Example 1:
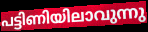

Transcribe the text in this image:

പട്ടിണിയിലാവുന്നു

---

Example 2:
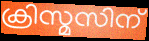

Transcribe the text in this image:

ക്രിസ്മസിന്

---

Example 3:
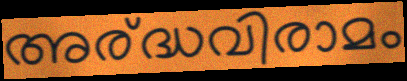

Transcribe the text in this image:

അര്ദ്ധവിരാമം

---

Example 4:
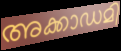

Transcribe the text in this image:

അക്കാഡമി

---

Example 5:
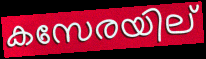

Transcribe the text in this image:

കസേരയില്